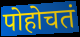
पोहोचतं